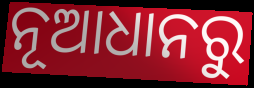
ନୂଆଧାନରୁ